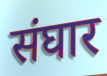
संघार